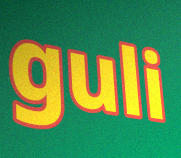
guli